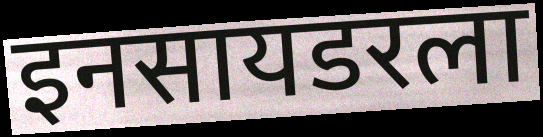
इनसायडरला